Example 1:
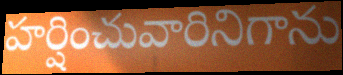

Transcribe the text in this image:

హర్షించువారినిగాను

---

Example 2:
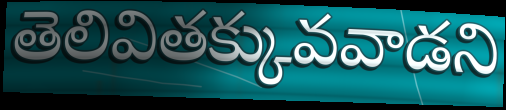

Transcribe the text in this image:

తెలివితక్కువవాడని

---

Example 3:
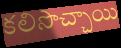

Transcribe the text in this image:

కలిసొచ్చాయి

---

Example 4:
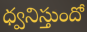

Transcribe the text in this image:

ధ్వనిస్తుందో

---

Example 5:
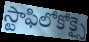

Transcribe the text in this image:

స్టాఫిలోకోక్సై